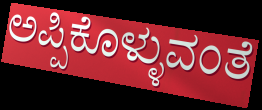
ಅಪ್ಪಿಕೊಳ್ಳುವಂತೆ